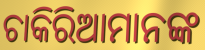
ଚାକିରିଆମାନଙ୍କ